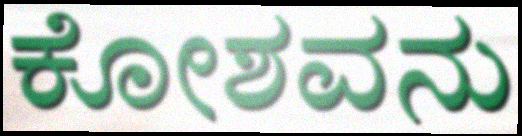
ಕೋಶವನು